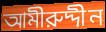
আমীরুদ্দীন